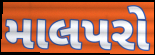
માલપરો